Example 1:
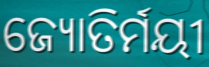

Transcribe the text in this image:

ଜ୍ୟୋତିର୍ମୟୀ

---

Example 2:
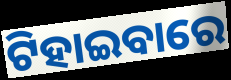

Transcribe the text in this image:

ଟିହାଇବାରେ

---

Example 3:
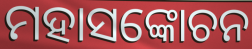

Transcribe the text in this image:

ମହାସଙ୍କୋଚନ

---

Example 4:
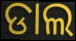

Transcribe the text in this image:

ଡାଲ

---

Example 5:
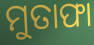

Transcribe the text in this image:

ମୁତାଫା